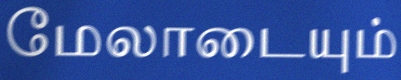
மேலாடையும்